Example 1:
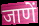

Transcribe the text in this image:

जाणें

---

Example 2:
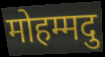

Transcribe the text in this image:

मोहम्मदु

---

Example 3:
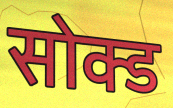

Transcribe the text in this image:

सोक्ड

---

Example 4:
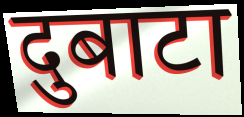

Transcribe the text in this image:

दुबाटा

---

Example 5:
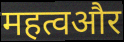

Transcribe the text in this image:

महत्वऔर